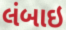
લંબાઇ